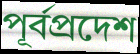
পূর্বপ্রদেশ